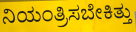
ನಿಯಂತ್ರಿಸಬೇಕಿತ್ತು